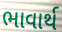
ભાવાર્થ